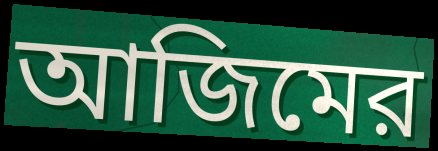
আজিমের